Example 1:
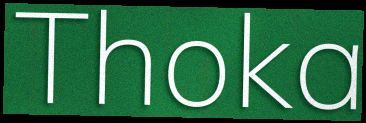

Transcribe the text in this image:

Thoka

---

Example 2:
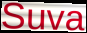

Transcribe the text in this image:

Suva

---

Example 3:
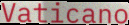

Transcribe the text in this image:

Vaticano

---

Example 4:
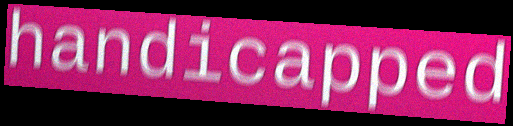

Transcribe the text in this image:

handicapped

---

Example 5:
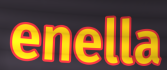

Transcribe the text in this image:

enella